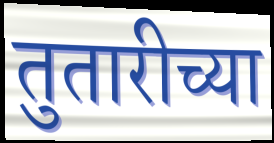
तुतारीच्या